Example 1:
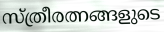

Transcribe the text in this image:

സ്ത്രീരത്നങ്ങളുടെ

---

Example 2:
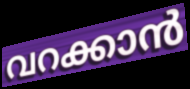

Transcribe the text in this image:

വറക്കാൻ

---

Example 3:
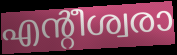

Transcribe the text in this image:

എന്റീശ്വരാ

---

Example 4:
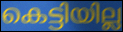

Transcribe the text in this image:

കെട്ടിയില്ല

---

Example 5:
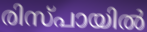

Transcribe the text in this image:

രിസ്പായിൽ